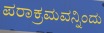
ಪರಾಕ್ರಮವನ್ನಿಂದು